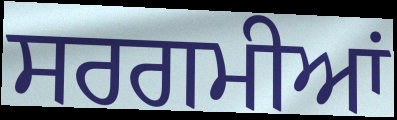
ਸਰਗਮੀਆਂ